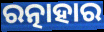
ରତ୍ନାହାର